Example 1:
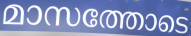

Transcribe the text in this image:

മാസത്തോടെ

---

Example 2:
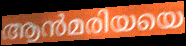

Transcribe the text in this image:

ആൻമരിയയെ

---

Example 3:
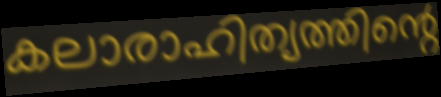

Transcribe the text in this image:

കലാരാഹിത്യത്തിന്റെ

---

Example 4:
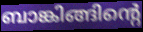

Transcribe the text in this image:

ബാങ്കിങ്ങിന്റെ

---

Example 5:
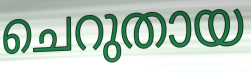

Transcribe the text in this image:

ചെറുതായ